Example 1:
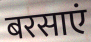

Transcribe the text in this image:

बरसाएं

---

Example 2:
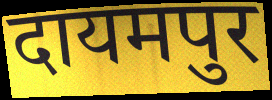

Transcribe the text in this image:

दायमपुर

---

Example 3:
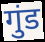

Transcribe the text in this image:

गुंड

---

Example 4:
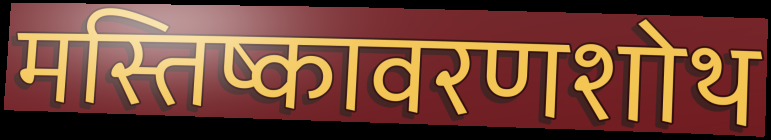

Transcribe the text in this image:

मस्तिष्कावरणशोथ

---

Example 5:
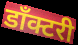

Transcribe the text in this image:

डाँक्टरी